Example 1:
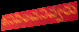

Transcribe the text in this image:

కనిపించనివ్వరు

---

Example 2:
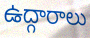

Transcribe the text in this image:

ఉద్గారాలు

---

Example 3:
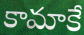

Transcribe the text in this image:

కామాకే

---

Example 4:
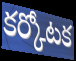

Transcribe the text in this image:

కర్కోటక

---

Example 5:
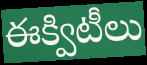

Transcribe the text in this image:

ఈక్విటీలు